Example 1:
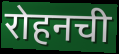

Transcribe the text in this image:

रोहनची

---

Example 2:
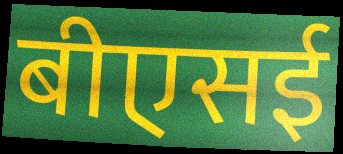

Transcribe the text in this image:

बीएसई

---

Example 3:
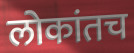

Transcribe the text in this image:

लोकांतच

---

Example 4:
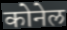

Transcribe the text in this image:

कोनेल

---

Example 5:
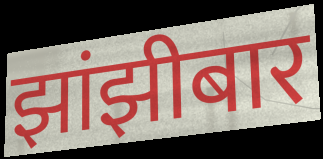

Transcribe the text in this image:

झांझीबार